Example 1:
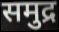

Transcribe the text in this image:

समुद्र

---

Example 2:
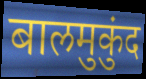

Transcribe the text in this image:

बालमुकुंद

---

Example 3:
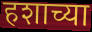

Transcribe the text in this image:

हशाच्या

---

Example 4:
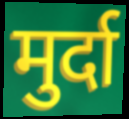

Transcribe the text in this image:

मुर्दा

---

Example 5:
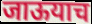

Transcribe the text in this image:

जाऊयाच